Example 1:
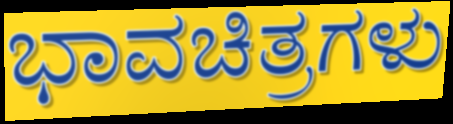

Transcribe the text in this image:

ಭಾವಚಿತ್ರಗಳು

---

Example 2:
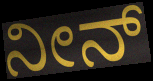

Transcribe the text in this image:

ನೀನ್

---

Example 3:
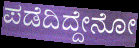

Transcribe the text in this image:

ಪಡೆದಿದ್ದೇನೋ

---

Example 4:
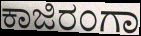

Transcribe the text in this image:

ಕಾಜಿರಂಗಾ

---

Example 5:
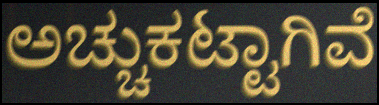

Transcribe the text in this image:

ಅಚ್ಚುಕಟ್ಟಾಗಿವೆ